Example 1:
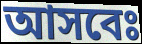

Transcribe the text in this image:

আসবেঃ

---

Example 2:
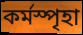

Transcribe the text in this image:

কর্মস্পৃহা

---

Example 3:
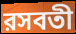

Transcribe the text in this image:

রসবতী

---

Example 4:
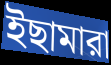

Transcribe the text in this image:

ইছামারা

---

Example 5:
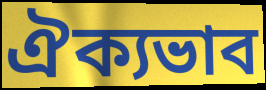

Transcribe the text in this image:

ঐক্যভাব